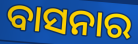
ବାସନାର